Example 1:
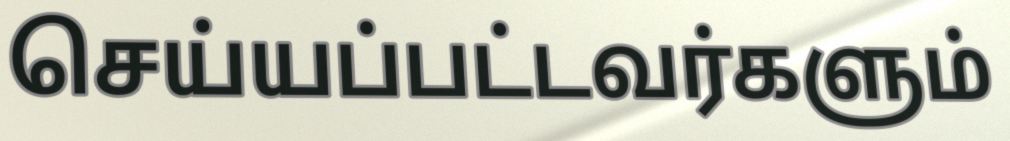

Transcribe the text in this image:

செய்யப்பட்டவர்களும்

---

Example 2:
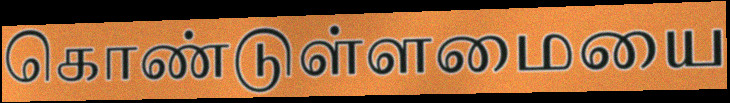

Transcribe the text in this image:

கொண்டுள்ளமையை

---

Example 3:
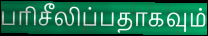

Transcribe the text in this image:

பரிசீலிப்பதாகவும்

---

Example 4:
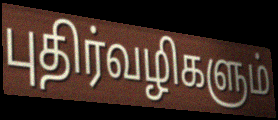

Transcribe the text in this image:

புதிர்வழிகளும்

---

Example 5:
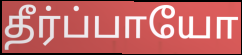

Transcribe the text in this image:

தீர்ப்பாயோ